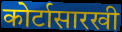
कोर्टासारखी